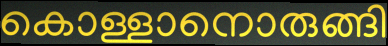
കൊള്ളാനൊരുങ്ങി